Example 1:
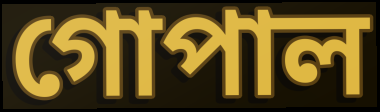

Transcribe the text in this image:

গোপাল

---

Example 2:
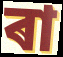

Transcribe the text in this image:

ৰা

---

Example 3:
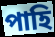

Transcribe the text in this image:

পাহি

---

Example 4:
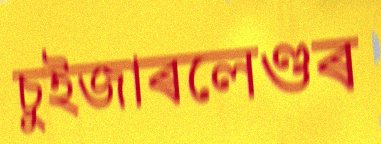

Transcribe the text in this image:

চুইজাৰলেণ্ডৰ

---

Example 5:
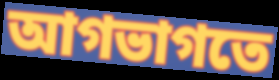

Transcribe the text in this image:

আগভাগতে